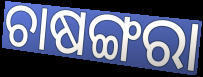
ଚାଷଙ୍ଗରା